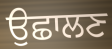
ਉਛਾਲਣ